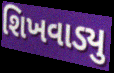
શિખવાડ્યુ